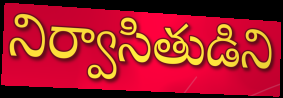
నిర్వాసితుడిని